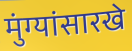
मुंग्यांसारखे